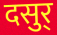
दसुर्